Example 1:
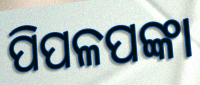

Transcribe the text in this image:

ପିପଳପଙ୍କା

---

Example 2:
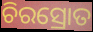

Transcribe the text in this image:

ଚିରସ୍ରୋତ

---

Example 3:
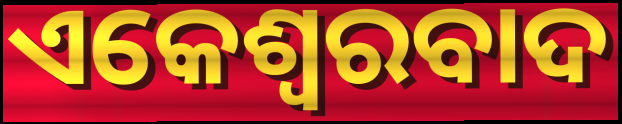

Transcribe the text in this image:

ଏକେଶ୍ୱରବାଦ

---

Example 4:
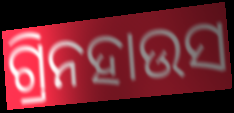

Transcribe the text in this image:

ଗ୍ରିନହାଉସ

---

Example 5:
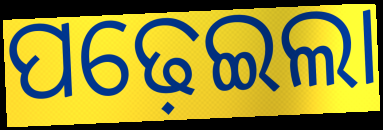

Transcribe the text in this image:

ପଢ଼େଇଲା